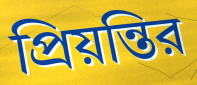
প্রিয়ন্তির